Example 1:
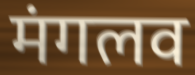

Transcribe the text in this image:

मंगलव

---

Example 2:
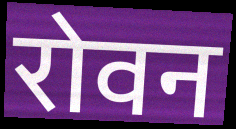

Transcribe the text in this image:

रोवन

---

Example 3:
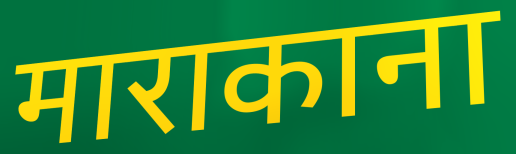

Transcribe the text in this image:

माराकाना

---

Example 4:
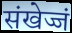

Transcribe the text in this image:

संखेज्जं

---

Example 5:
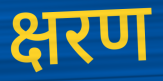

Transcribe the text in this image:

क्षरण